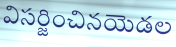
విసర్జించినయెడల